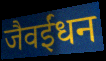
जैवईंधन